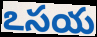
ఽసయ